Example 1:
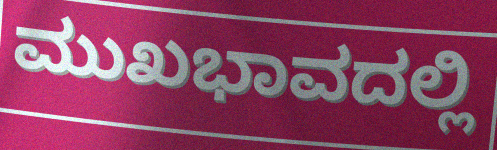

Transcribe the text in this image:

ಮುಖಭಾವದಲ್ಲಿ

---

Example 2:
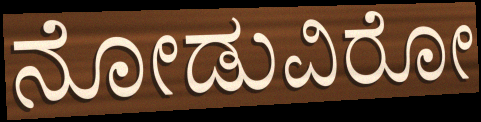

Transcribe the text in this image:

ನೋಡುವಿರೋ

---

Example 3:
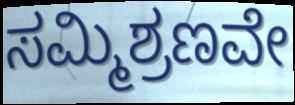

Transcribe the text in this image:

ಸಮ್ಮಿಶ್ರಣವೇ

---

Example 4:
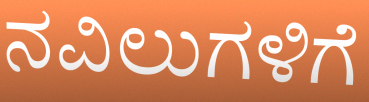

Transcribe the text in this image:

ನವಿಲುಗಳಿಗೆ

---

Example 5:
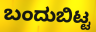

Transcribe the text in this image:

ಬಂದುಬಿಟ್ಟ